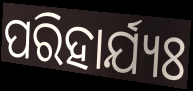
ପରିହାର୍ଯ୍ୟଃ